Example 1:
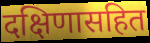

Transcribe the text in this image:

दक्षिणासहित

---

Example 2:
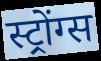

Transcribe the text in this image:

स्ट्रोंग्स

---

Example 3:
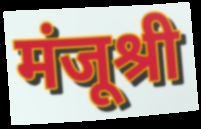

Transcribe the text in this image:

मंजूश्री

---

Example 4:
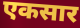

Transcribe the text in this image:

एकसार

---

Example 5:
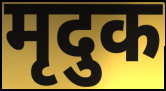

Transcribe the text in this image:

मृदुक